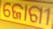
ଜୋଗୀ